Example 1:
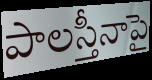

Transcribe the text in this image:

పాలస్తీనాపై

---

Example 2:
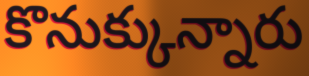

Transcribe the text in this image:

కొనుక్కున్నారు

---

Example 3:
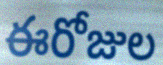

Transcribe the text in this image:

ఈరోజుల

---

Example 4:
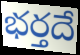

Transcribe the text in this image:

భర్తదే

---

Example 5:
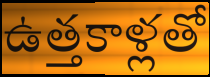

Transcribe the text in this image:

ఉత్తకాళ్లతో